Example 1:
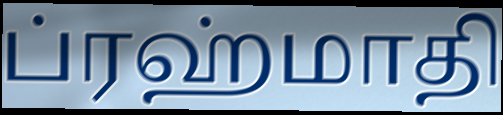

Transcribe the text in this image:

ப்ரஹ்மாதி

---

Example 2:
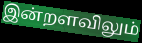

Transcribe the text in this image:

இன்றளவிலும்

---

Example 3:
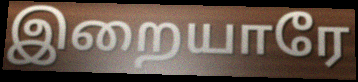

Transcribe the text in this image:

இறையாரே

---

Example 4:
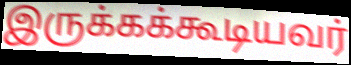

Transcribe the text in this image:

இருக்கக்கூடியவர்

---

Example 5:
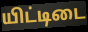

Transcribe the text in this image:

யிட்டிடை